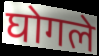
घोगले